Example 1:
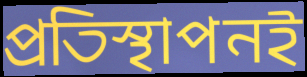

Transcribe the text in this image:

প্রতিস্থাপনই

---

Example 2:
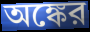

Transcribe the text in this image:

অঙ্কের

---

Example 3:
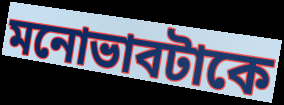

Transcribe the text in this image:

মনোভাবটাকে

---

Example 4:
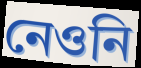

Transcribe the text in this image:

নেওনি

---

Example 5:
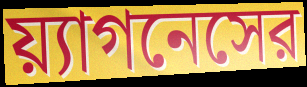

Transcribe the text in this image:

য়্যাগনেসের